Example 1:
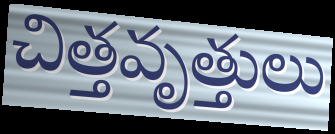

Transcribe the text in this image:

చిత్తవృత్తులు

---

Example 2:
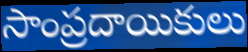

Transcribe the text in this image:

సాంప్రదాయికులు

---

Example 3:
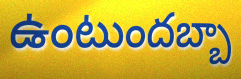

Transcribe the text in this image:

ఉంటుందబ్బా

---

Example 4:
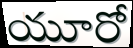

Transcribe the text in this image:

యూరో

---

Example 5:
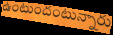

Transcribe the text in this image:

ఉంటుందంటున్నారు